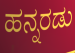
ಹನ್ನರಡು